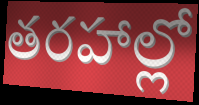
తరహాల్లో